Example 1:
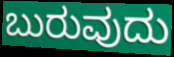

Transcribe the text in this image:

ಬುರುವುದು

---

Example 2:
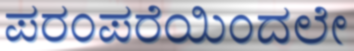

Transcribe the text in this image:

ಪರಂಪರೆಯಿಂದಲೇ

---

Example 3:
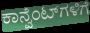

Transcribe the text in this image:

ಕಾನ್ವೆಂಟ್‌ಗಳಿಗೆ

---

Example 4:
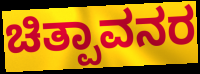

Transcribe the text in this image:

ಚಿತ್ಪಾವನರ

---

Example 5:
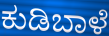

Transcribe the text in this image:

ಕುಡಿಬಾಳೆ